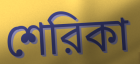
শেরিকা